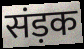
संड़क